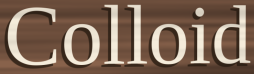
Colloid